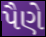
પૈણે